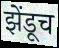
झेंडूच